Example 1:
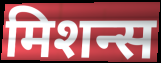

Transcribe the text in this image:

मिशन्स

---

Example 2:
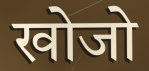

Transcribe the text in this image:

खोजो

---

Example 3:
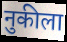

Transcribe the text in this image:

नुकीला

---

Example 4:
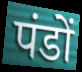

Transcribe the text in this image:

पंडों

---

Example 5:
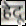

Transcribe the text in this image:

हेदू